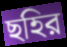
ছহির